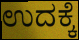
ಉದಕ್ಕೆ